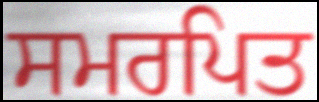
ਸਮਰਪਿਤ